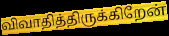
விவாதித்திருக்கிறேன்